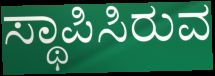
ಸ್ಥಾಪಿಸಿರುವ